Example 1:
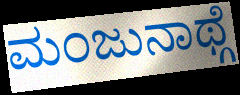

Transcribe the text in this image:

ಮಂಜುನಾಥ್ಗೆ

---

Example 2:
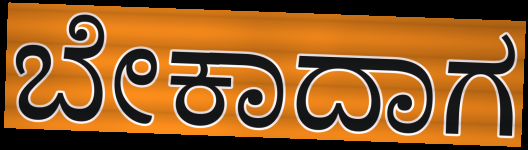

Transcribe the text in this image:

ಬೇಕಾದಾಗ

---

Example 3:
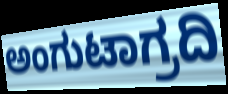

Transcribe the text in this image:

ಅಂಗುಟಾಗ್ರದಿ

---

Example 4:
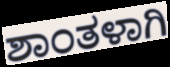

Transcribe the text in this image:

ಶಾಂತಳಾಗಿ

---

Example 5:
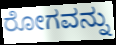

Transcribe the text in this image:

ರೋಗವನ್ನು